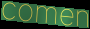
comen